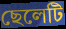
ছেলেটি